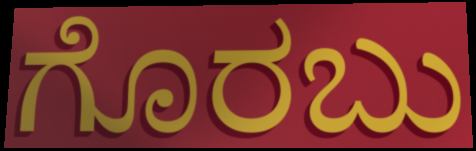
ಗೊರಬು